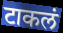
टाकलं